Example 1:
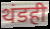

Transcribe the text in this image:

थंडही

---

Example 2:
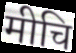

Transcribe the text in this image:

मीचि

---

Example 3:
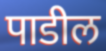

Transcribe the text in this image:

पाडील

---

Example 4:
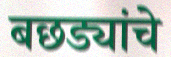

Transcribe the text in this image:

बछड्यांचे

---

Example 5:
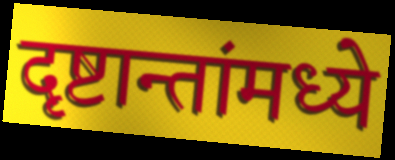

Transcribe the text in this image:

दृष्टान्तांमध्ये